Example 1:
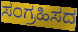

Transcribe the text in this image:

ಸಂಗ್ರಹಿಸದ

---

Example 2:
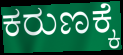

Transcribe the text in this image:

ಕರುಣಕ್ಕೆ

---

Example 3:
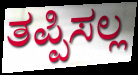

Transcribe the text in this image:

ತಪ್ಪಿಸಲ್ಲ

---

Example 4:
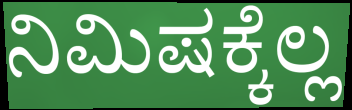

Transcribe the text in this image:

ನಿಮಿಷಕ್ಕೆಲ್ಲ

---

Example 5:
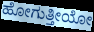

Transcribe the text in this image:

ಹೋಗುತ್ತೀಯೋ